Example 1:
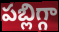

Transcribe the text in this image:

పబ్లిగ్గా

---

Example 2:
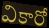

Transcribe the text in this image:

వికారో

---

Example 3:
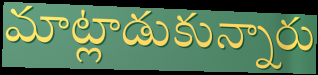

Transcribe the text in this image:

మాట్లాడుకున్నారు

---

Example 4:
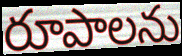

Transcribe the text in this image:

రూపాలను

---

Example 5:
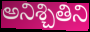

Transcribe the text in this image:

అనిశ్చితిని